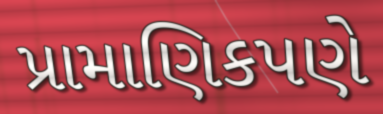
પ્રામાણિકપણે